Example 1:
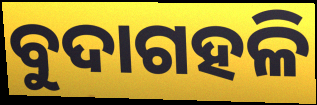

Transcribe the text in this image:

ବୁଦାଗହଳି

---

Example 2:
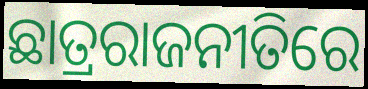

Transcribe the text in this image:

ଛାତ୍ରରାଜନୀତିରେ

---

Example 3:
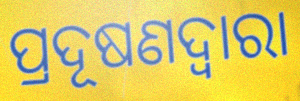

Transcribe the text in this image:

ପ୍ରଦୂଷଣଦ୍ବାରା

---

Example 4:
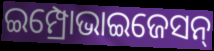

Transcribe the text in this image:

ଇମ୍ପ୍ରୋଭାଇଜେସନ୍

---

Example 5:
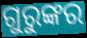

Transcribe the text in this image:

ଗୁରୁଙ୍କର